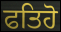
ਫਤਿਹੋ